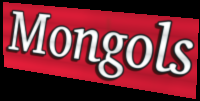
Mongols